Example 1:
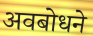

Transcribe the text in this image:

अवबोधने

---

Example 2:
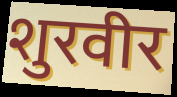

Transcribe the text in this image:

शुरवीर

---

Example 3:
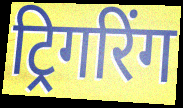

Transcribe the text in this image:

ट्रिगरिंग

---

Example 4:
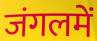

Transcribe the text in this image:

जंगलमें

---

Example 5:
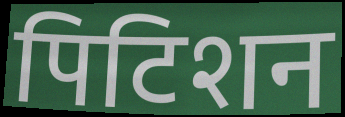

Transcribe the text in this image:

पिटिशन